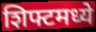
शिफ्टमध्ये